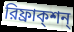
রিফ্রাক্শন্